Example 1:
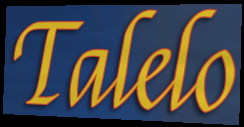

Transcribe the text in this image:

Talelo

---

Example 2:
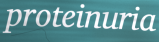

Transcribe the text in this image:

proteinuria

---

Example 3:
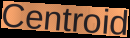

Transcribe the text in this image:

Centroid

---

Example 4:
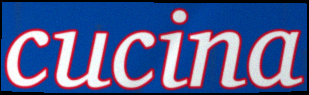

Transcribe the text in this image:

cucina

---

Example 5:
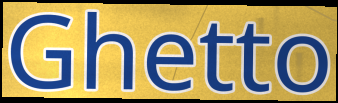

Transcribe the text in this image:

Ghetto